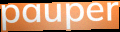
pauper